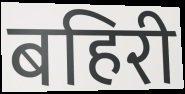
बहिरी